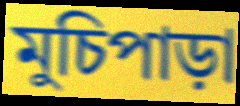
মুচিপাড়া